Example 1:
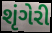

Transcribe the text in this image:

શૃંગેરી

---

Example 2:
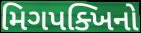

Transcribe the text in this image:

મિગપક્ખિનો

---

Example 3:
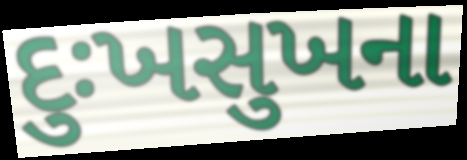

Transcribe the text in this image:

દુઃખસુખના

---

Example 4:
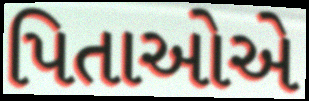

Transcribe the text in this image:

પિતાઓએ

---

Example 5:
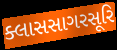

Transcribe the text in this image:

ક્લાસસાગરસૂરિ